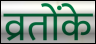
व्रतोंके